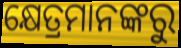
କ୍ଷେତ୍ରମାନଙ୍କରୁ